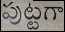
పుట్టగా